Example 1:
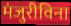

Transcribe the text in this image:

मंजुरीविना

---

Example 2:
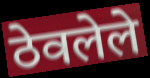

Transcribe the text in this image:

ठेवलेले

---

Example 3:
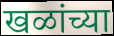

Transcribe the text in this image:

खळांच्या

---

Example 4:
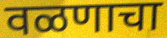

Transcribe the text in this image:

वळणाचा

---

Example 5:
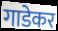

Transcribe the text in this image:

गाडेकर